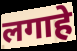
लगाहे